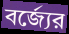
বর্জ্যের